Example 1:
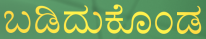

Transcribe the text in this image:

ಬಡಿದುಕೊಂಡ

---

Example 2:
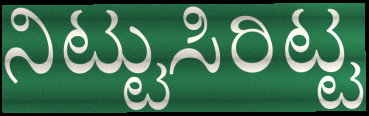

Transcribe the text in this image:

ನಿಟ್ಟುಸಿರಿಟ್ಟ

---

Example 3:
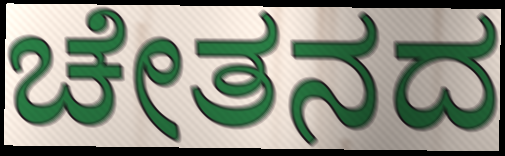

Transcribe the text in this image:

ಚೇತನದ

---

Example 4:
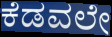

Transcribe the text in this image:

ಕೆಡವಲೇ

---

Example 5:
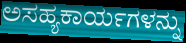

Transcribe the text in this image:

ಅಸಹ್ಯಕಾರ್ಯಗಳನ್ನು